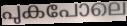
പുകപോലെ